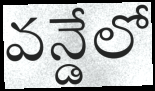
వన్డేలో